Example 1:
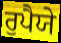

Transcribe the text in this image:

ਰੁਪੈਯੇ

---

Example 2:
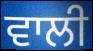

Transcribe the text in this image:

ਵਾਲੀ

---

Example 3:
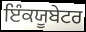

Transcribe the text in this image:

ਇੰਕਯੂਬੇਟਰ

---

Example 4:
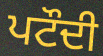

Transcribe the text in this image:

ਪਟੌਦੀ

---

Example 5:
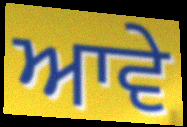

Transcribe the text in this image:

ਆਵੇ